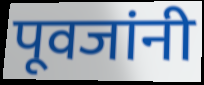
पूवजांनी